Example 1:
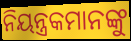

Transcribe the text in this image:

ନିୟନ୍ତ୍ରକମାନଙ୍କୁ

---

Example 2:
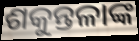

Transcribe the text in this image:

ଶକୁନ୍ତଳାଙ୍କ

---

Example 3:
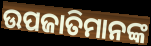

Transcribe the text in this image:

ଉପଜାତିମାନଙ୍କ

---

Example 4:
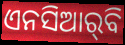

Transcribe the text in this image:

ଏନସିଆର୍‌ବି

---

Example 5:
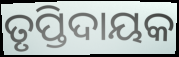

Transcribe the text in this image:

ତୃପ୍ତିଦାୟକ